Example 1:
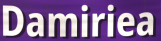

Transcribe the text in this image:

Damiriea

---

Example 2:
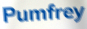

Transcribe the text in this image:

Pumfrey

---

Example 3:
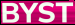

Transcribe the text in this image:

BYST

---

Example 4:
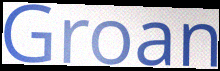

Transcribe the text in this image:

Groan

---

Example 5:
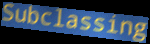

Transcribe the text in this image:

Subclassing